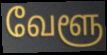
வேளூ